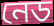
নেড